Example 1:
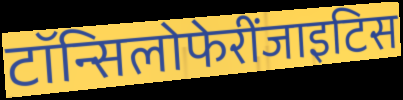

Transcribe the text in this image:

टॉन्सिलोफेरींजाइटिस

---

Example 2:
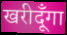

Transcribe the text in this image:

खरीदूँगा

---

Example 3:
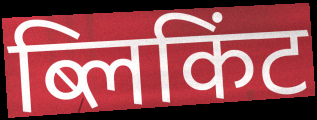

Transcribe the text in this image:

ब्लिकिंट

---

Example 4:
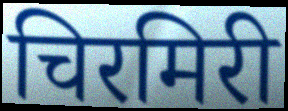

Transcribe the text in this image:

चिरमिरी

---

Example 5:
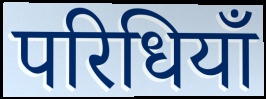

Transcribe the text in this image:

परिधियाँ